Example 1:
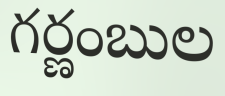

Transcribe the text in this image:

గర్ణంబుల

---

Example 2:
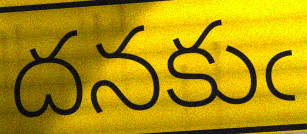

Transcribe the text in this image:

దనకుఁ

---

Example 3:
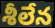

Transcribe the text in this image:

శీలేన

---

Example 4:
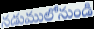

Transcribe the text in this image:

నడుములోనుండి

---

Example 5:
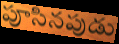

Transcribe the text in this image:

పూసినపుడు